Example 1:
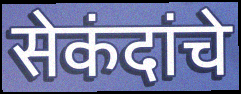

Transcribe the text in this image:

सेकंदांचे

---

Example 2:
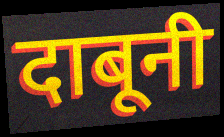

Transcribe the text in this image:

दाबूनी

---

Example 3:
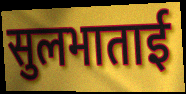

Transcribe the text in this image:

सुलभाताई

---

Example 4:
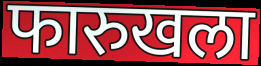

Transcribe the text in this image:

फारुखला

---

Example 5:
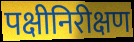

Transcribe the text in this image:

पक्षीनिरीक्षण